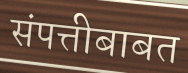
संपत्तीबाबत